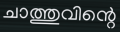
ചാത്തുവിന്റെ